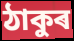
ঠাকুৰ